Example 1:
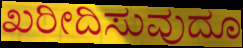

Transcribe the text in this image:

ಖರೀದಿಸುವುದೂ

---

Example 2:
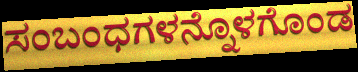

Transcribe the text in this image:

ಸಂಬಂಧಗಳನ್ನೊಳಗೊಂಡ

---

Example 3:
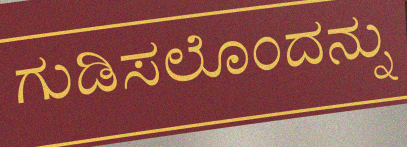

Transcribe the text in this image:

ಗುಡಿಸಲೊಂದನ್ನು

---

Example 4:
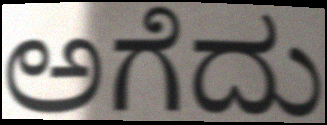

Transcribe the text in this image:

ಅಗೆದು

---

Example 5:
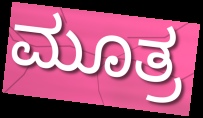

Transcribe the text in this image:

ಮೂತ್ರ